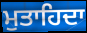
ਮੁਤਾਹਿਦਾ